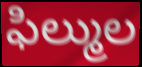
ఫిల్ముల